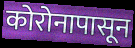
कोरोनापासून